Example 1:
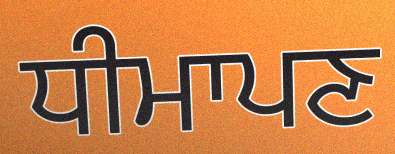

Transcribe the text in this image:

ਧੀਮਾਪਣ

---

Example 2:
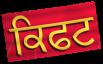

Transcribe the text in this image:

ਕਿਫਟ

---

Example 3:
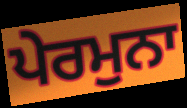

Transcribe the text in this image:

ਪੇਰਮੁਨਾ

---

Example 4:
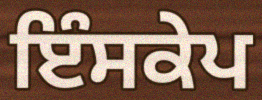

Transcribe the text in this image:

ਇੰਸਕੇਪ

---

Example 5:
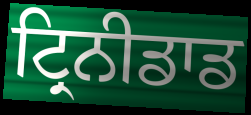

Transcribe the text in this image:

ਟ੍ਰਿਨੀਡਾਡ